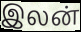
இலன்